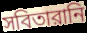
সবিতারানি